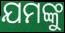
ଯମଙ୍କୁ